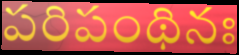
పరిపంథినః